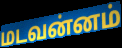
மடவன்னம்